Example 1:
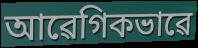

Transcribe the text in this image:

আৱেগিকভাৱে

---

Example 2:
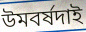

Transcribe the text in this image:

উমবৰ্ষদাই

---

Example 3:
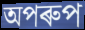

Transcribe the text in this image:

অপৰুপ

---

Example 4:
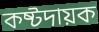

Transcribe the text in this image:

কষ্টদায়ক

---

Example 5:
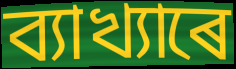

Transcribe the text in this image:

ব্যাখ্যাৰে